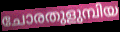
ചോരതുളുമ്പിയ